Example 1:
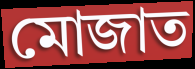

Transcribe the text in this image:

মোজাত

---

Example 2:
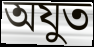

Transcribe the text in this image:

অযুত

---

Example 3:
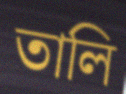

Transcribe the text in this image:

তালি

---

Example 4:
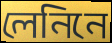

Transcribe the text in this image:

লেনিনে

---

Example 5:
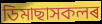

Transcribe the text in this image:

ডিমাছাসকলৰ